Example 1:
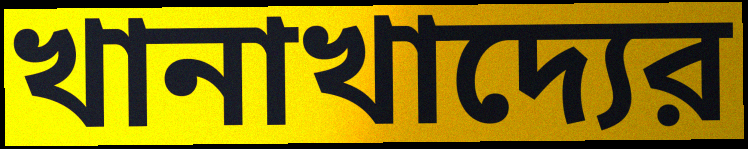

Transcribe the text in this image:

খানাখাদ্যের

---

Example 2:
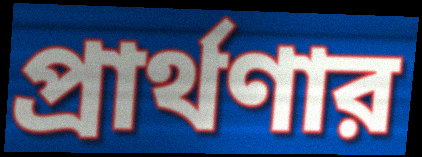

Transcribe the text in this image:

প্রার্থণার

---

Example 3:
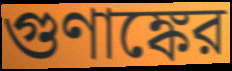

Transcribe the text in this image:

গুণাঙ্কের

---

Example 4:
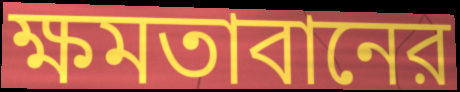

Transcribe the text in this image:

ক্ষমতাবানের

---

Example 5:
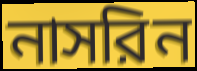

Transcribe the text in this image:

নাসরিন